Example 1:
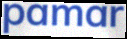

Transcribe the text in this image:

pamar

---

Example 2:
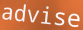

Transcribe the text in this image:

advise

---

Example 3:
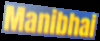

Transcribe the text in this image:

Manibhai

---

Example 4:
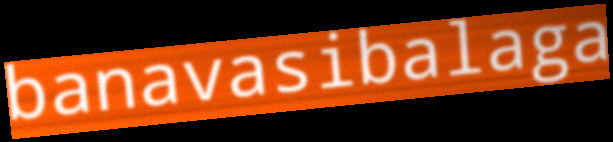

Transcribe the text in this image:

banavasibalaga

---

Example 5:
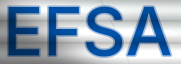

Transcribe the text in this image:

EFSA